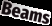
Beams